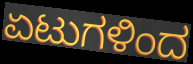
ಏಟುಗಳಿಂದ